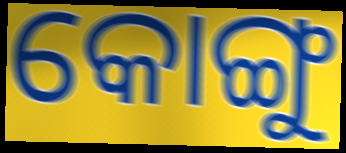
କୋଙ୍ଗୁ